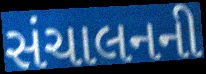
સંચાલનની